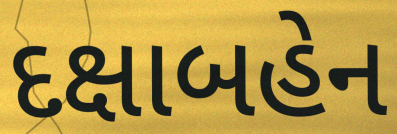
દક્ષાબહેન